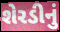
શેરડીનું